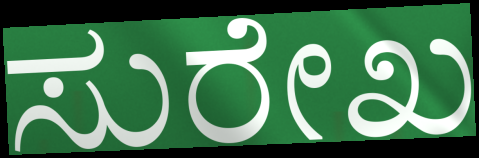
ಸುರೇಖ